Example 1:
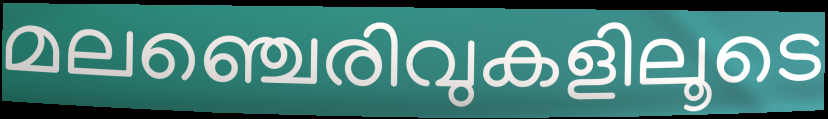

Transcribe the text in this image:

മലഞ്ചെരിവുകളിലൂടെ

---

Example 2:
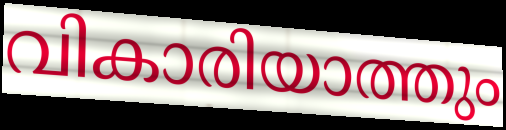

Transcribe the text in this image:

വികാരിയാത്തും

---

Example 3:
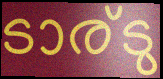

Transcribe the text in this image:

ടാര്ടു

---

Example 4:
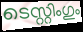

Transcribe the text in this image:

ടെസ്റ്റിംഗും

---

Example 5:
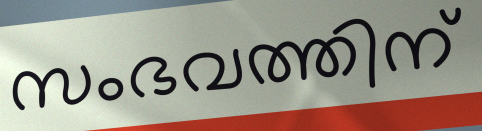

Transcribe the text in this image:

സംഭവത്തിന്